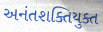
અનંતશક્તિયુક્ત